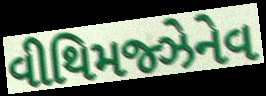
વીથિમજ્ઝેનેવ